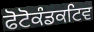
ਫੋਟੋਕੰਡਕਟਿਵ